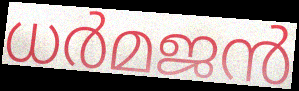
ധർമജൻ